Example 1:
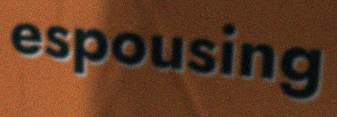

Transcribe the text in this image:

espousing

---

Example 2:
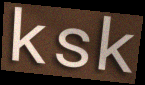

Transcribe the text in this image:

ksk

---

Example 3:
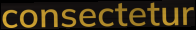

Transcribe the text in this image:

consectetur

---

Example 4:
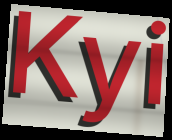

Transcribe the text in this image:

Kyi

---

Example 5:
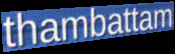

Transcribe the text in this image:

thambattam